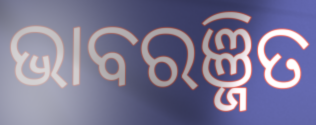
ଭାବରଞ୍ଜିତ